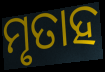
ମୃତାହ